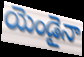
యెండైనా